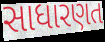
સાધારણત